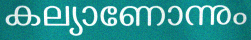
കല്യാണോന്നും